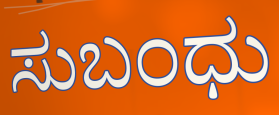
ಸುಬಂಧು